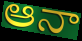
ఆనా